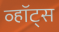
व्हॉट्स